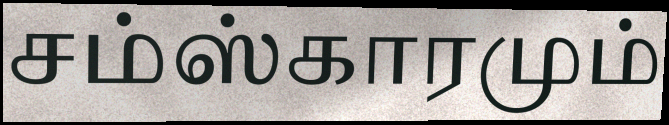
சம்ஸ்காரமும்